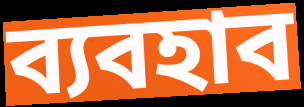
ব্যবহাব